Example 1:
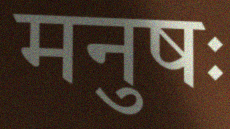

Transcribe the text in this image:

मनुषः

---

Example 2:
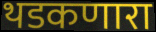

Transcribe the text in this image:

थडकणारा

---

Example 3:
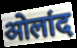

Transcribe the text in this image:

ओलांद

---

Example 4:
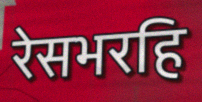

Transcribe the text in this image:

रेसभरहि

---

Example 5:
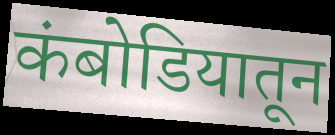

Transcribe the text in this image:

कंबोडियातून